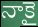
నాకై